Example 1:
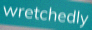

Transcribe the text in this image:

wretchedly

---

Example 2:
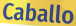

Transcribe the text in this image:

Caballo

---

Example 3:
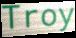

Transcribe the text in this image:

Troy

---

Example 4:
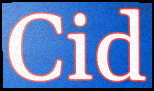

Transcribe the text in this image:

Cid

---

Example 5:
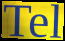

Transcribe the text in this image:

Tel